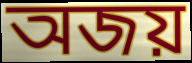
অজয়